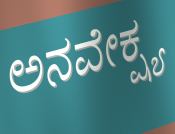
ಅನವೇಕ್ಷ್ಯ